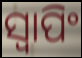
ସ୍ବାପିଂ